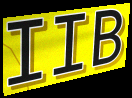
IIB